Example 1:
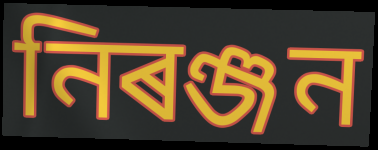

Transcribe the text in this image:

নিৰঞ্জন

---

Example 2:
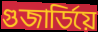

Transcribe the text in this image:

গুজাৰ্ডিয়ে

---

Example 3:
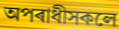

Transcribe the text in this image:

অপৰাধীসকলে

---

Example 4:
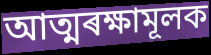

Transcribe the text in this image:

আত্মৰক্ষামূলক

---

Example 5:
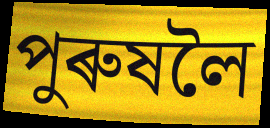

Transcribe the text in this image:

পুৰুষলৈ